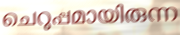
ചെറുപ്പമായിരുന്ന